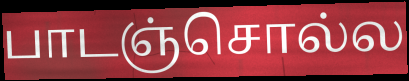
பாடஞ்சொல்ல